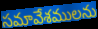
సమావేశములను